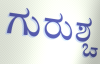
ಗುರುಶ್ಚ